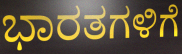
ಭಾರತಗಳಿಗೆ